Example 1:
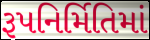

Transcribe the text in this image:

રૂપનિર્મિતિમાં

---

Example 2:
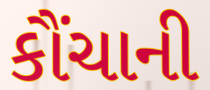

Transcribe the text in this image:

કૌંચાની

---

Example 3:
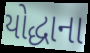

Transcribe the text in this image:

યોદ્ધાના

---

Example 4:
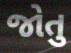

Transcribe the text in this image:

જોતુ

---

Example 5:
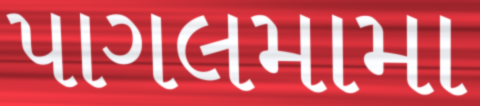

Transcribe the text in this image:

પાગલમામા